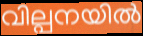
വില്പനയിൽ